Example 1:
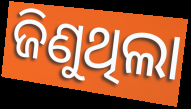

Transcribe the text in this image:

ଜିଣୁଥିଲା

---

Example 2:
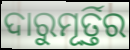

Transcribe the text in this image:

ଦାରୁମୂର୍ତ୍ତିର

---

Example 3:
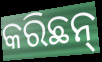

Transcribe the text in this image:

କରିଛନ୍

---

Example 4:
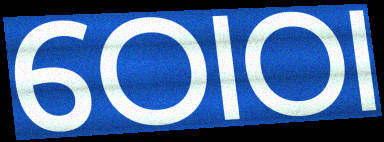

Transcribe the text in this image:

ଠୋଠା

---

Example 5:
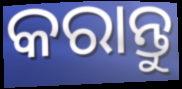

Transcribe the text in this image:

କରାନ୍ତୁ